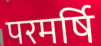
परमर्षि